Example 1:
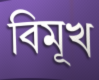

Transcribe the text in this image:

বিমূখ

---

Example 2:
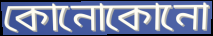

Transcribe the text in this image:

কোনোকোনো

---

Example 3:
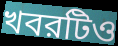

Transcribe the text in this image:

খবরটিও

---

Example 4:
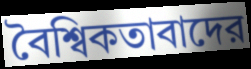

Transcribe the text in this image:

বৈশ্বিকতাবাদের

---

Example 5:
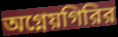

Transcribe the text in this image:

অগ্নেয়গিরির